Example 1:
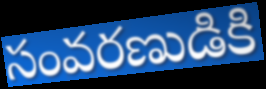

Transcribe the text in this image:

సంవరణుడికి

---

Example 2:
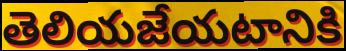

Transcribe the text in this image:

తెలియజేయటానికి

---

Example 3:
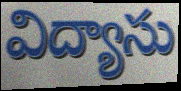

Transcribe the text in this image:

విద్యాసు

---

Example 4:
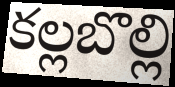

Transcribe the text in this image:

కల్లబొల్లి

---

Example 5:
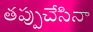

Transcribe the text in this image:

తప్పుచేసినా